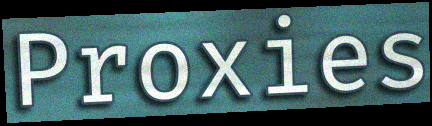
Proxies